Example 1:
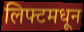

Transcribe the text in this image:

लिफ्टमधून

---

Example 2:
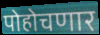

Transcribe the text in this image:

पोहोचणार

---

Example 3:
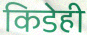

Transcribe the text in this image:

किडेही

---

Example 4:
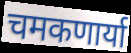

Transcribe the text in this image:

चमकणार्या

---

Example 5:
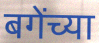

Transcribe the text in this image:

बगेंच्या